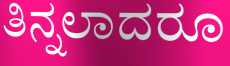
ತಿನ್ನಲಾದರೂ